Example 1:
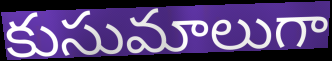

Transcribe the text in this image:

కుసుమాలుగా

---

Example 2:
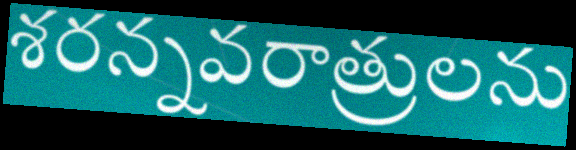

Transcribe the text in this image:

శరన్నవరాత్రులను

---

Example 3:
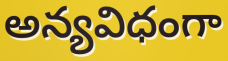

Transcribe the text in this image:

అన్యవిధంగా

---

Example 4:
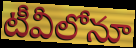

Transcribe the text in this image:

టీవీలోనూ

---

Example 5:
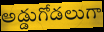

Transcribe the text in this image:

అడ్డుగోడలుగా